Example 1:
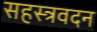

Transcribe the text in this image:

सहस्त्रवदन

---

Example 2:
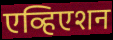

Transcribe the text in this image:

एव्हिएशन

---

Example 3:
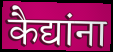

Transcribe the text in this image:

कैद्यांना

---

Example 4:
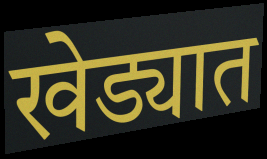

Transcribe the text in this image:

खेड्यात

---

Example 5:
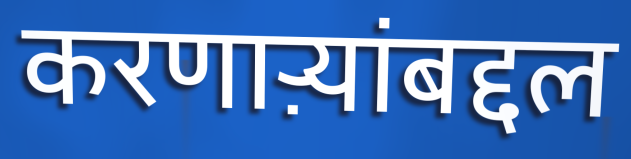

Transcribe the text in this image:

करणाऱ्‍यांबद्दल